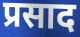
प्रसाद